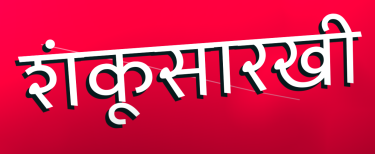
शंकूसारखी